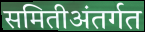
समितीअंतर्गत